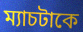
ম্যাচটাকে